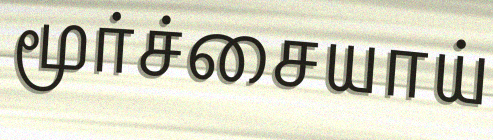
மூர்ச்சையாய்